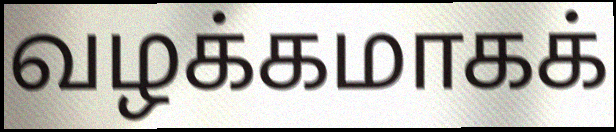
வழக்கமாகக்